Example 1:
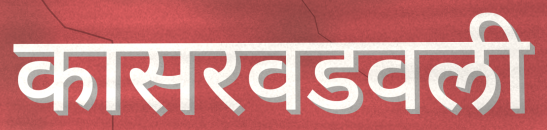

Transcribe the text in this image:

कासरवडवली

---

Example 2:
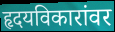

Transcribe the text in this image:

हृदयविकारांवर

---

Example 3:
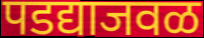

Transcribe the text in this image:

पडद्याजवळ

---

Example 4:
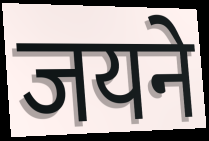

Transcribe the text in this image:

जयने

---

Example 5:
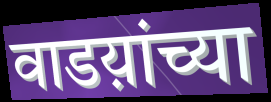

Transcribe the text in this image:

वाडय़ांच्या